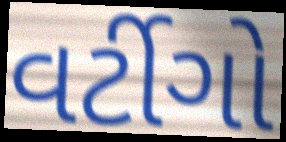
વર્ટીગો